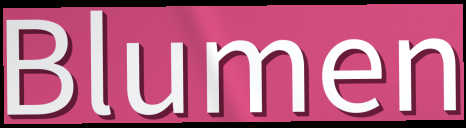
Blumen